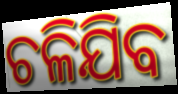
ଚଳିଯିବ